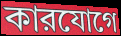
কারযোগে